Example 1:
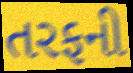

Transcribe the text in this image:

તરફની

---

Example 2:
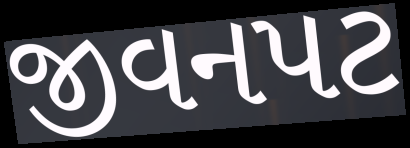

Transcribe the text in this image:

જીવનપટ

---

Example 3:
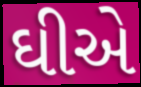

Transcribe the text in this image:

ઘીએ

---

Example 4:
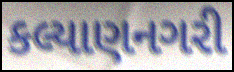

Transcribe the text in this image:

કલ્યાણનગરી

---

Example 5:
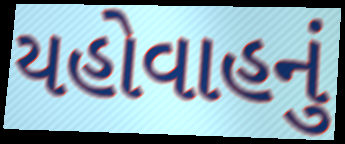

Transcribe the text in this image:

યહોવાહનું